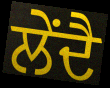
ਲੇਂਦੈ